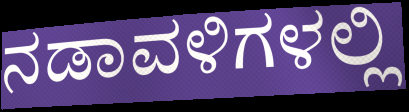
ನಡಾವಳಿಗಳಲ್ಲಿ